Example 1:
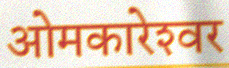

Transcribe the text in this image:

ओमकारेश्वर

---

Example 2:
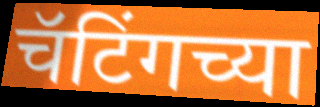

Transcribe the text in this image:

चॅटिंगच्या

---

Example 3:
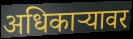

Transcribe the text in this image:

अधिकार्‍यावर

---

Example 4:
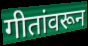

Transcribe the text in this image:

गीतांवरून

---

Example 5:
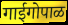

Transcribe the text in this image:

गाईगोपाळ